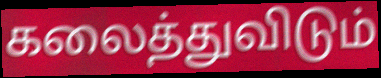
கலைத்துவிடும்